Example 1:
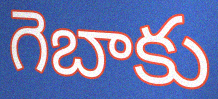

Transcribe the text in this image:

గెబాకు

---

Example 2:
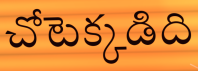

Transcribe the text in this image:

చోటెక్కడిది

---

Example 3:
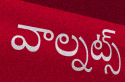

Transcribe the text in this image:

వాల్నట్స్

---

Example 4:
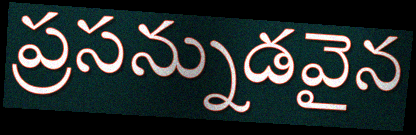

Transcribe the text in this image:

ప్రసన్నుడవైన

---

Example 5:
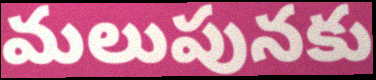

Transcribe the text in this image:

మలుపునకు